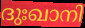
ദുഃഖാനി